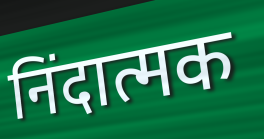
निंदात्मक